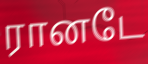
ரானடே